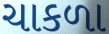
ચાકળા